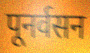
पूनर्वसन